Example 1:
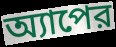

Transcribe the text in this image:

অ্যাপের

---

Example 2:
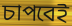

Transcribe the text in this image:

চাপবেই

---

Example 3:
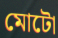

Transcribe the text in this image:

মোটো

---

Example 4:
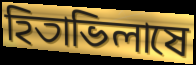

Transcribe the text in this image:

হিতাভিলাষে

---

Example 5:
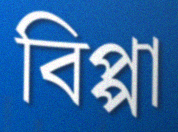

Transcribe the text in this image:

বিপ্পা